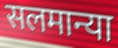
सलमान्या